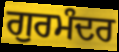
ਗੁਰਮੰਦਰ